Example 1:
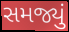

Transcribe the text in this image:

સમજ્યું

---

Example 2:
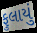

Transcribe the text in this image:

ફુલાયું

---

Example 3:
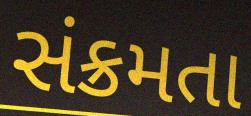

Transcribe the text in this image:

સંક્રમતા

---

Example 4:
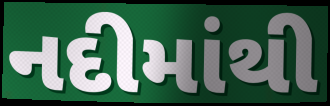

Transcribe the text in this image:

નદીમાંથી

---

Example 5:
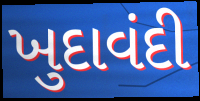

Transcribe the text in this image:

ખુદાવંદી